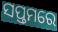
ସପ୍ତମରେ